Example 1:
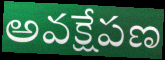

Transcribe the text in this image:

అవక్షేపణ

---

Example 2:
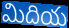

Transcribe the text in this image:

మిదియ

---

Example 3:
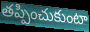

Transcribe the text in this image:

తప్పించుకుంటా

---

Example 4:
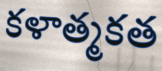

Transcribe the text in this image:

కళాత్మకత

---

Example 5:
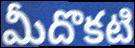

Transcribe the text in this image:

మీదొకటి